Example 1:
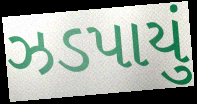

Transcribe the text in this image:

ઝડપાયું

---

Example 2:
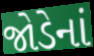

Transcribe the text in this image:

જોડેનાં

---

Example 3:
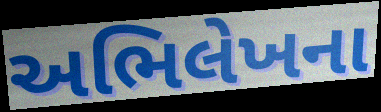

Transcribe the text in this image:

અભિલેખના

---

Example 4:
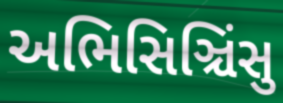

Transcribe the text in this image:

અભિસિઞ્ચિંસુ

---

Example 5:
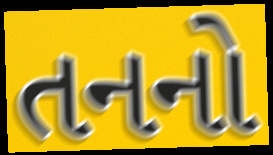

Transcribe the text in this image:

તનનો